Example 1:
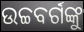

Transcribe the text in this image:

ଉଚ୍ଚବର୍ଗଙ୍କୁ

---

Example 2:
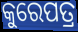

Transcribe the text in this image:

କୁରେପତ୍ର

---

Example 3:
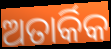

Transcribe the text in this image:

ଅତାର୍କିକ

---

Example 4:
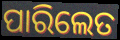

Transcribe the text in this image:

ପାରିଲେତ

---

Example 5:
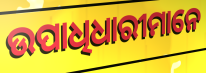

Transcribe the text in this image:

ଉପାଧିଧାରୀମାନେ